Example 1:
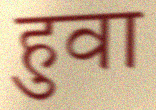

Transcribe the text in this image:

हुवा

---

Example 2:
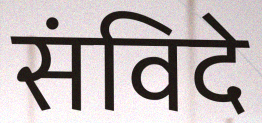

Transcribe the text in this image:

संविदे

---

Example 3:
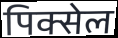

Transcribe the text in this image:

पिक्सेल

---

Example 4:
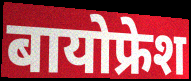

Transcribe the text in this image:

बायोफ्रेश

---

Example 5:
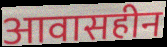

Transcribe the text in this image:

आवासहीन